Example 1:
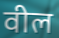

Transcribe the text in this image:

वील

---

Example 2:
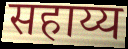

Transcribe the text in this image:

सहाय्य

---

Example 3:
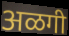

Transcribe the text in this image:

अळगी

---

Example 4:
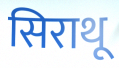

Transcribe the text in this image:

सिराथू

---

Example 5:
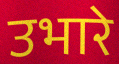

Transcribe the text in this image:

उभारे